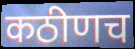
कठीणच